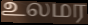
உலமர